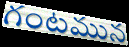
గంటమున